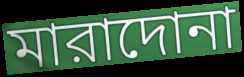
মারাদোনা